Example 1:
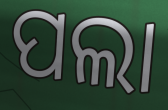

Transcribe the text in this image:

ପଲା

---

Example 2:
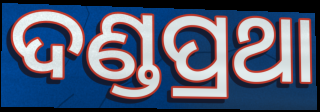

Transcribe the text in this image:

ଦଣ୍ଡପ୍ରଥା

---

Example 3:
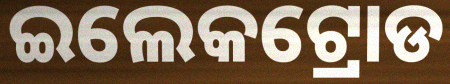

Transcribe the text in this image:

ଇଲେକଟ୍ରୋଡ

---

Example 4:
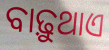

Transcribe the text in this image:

ବାଢ଼ୁଥାଏ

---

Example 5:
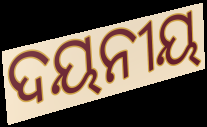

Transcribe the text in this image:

ଦୟନୀୟ